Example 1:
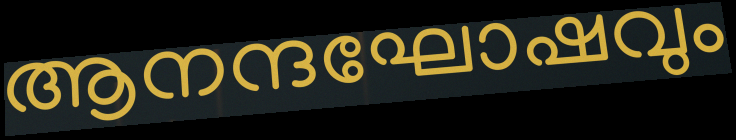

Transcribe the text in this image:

ആനന്ദഘോഷവും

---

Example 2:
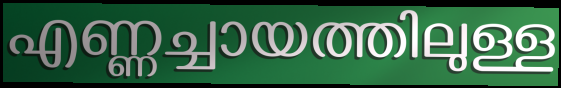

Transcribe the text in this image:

എണ്ണച്ചായത്തിലുള്ള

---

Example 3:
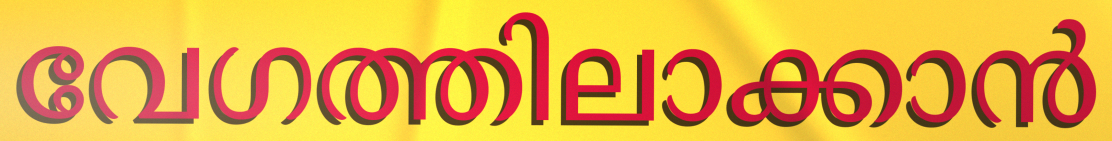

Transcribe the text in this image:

വേഗത്തിലാക്കാൻ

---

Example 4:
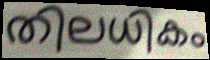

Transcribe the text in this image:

തിലധികം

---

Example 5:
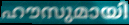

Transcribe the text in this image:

ഹൗസുമായി